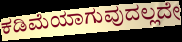
ಕಡಿಮೆಯಾಗುವುದಲ್ಲದೇ